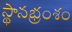
స్థానభ్రంశం